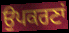
ਉਪਕਰਣਾਂ